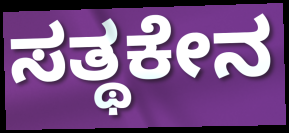
ಸತ್ಥಕೇನ